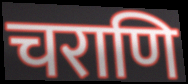
चराणि